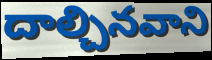
దాల్చినవాని